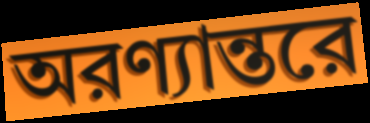
অরণ্যান্তরে